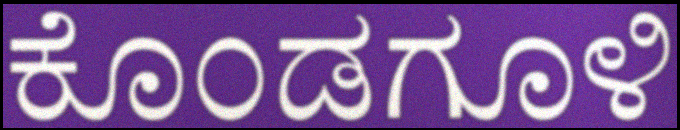
ಕೊಂಡಗೂಳಿ